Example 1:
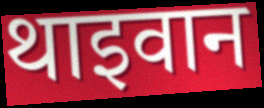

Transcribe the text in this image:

थाइवान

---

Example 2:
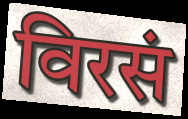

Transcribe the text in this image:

विरसं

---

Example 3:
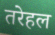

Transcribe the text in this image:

तरेहल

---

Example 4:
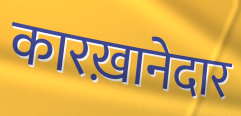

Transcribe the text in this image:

कारख़ानेदार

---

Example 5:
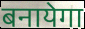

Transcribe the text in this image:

बनायेगा